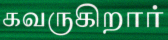
கவருகிறார்